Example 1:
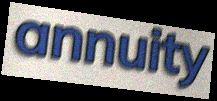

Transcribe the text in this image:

annuity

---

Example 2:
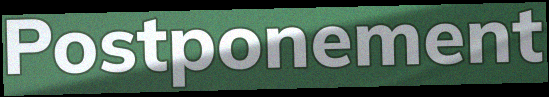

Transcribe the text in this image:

Postponement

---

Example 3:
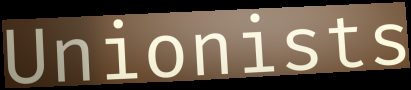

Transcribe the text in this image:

Unionists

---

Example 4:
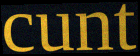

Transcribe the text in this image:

cunt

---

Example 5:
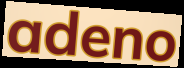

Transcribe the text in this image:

adeno